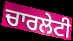
ਚਾਰਲੇਟੀ